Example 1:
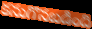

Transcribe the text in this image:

కనుగొనబడింది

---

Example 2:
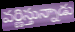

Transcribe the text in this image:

వర్ణిస్తున్నాడు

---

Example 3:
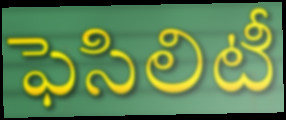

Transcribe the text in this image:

ఫెసిలిటీ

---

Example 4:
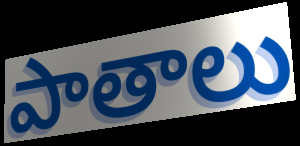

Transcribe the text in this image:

పాతాలు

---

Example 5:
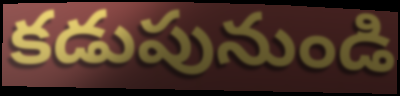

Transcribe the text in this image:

కడుపునుండి